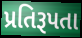
પ્રતિરૂપતા